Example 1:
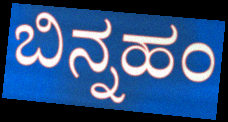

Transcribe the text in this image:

ಬಿನ್ನಹಂ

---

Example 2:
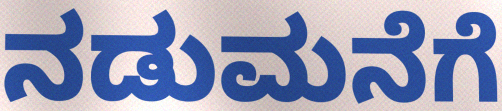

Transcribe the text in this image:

ನಡುಮನೆಗೆ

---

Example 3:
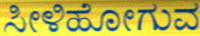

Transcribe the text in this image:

ಸೀಳಿಹೋಗುವ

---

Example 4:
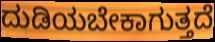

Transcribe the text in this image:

ದುಡಿಯಬೇಕಾಗುತ್ತದೆ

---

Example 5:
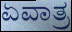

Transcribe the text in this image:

ಏವಾತ್ರ